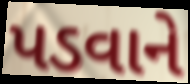
પડવાને